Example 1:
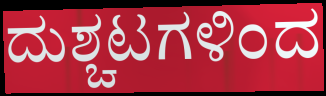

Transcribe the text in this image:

ದುಶ್ಚಟಗಳಿಂದ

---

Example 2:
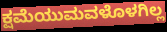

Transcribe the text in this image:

ಕ್ಷಮೆಯುಮವಳೊಳಗಿಲ್ಲ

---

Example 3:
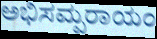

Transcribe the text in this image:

ಅಭಿಸಮ್ಪರಾಯಂ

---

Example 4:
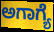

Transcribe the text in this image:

ಅಗಾಗ್ಯೆ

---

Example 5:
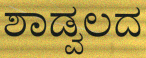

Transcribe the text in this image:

ಶಾಡ್ವಲದ